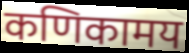
कणिकामय